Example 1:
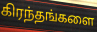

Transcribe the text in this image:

கிரந்தங்களை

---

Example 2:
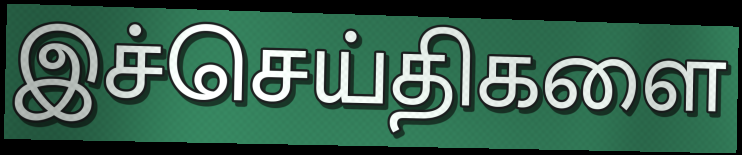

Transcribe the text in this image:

இச்செய்திகளை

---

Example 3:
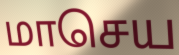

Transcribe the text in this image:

மாசெய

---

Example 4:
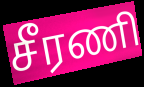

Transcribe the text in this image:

சீரணி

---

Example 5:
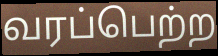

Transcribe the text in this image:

வரப்பெற்ற